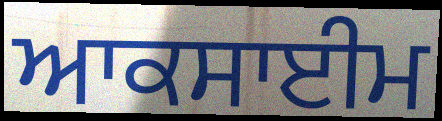
ਆਕਸਾਈਮ